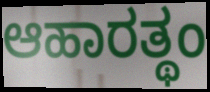
ಆಹಾರತ್ಥಂ